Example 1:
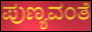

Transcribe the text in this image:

ಪುಣ್ಯವಂತೆ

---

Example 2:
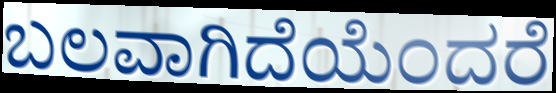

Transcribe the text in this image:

ಬಲವಾಗಿದೆಯೆಂದರೆ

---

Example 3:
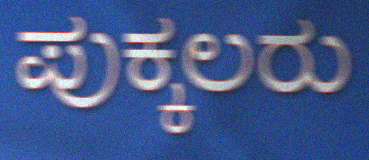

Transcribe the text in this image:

ಪುಕ್ಕಲರು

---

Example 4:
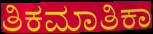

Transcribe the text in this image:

ತಿಕಮಾತಿಕಾ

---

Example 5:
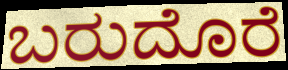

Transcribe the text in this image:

ಬರುದೊರೆ